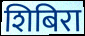
शिबिरा